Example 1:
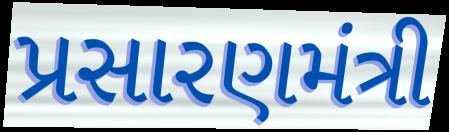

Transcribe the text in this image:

પ્રસારણમંત્રી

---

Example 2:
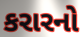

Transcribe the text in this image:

કરારનો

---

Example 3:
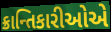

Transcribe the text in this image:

ક્રાન્તિકારીઓએ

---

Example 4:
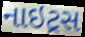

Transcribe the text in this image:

નાઇટ્રસ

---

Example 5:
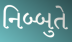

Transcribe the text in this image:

નિબ્બુતે